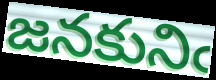
జనకునిఁ